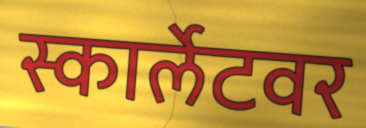
स्कार्लेटवर